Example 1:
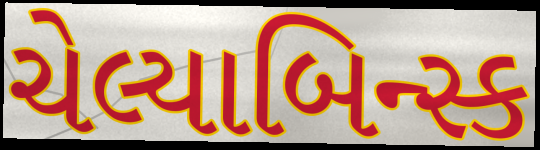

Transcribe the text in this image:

ચેલ્યાબિન્સ્ક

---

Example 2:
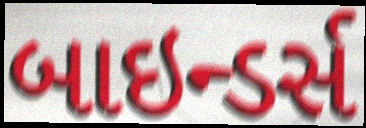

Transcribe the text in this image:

બાઇન્ડર્સ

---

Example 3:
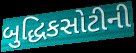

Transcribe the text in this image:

બુદ્ધિકસોટીની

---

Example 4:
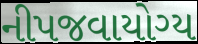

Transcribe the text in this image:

નીપજવાયોગ્ય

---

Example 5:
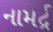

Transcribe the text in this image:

નામર્દ્ર